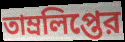
তাম্রলিপ্তের